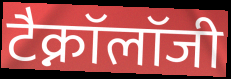
टैक्नॉलॉजी